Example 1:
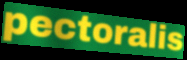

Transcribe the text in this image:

pectoralis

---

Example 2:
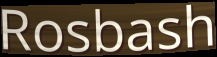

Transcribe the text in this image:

Rosbash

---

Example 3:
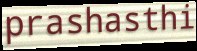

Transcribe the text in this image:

prashasthi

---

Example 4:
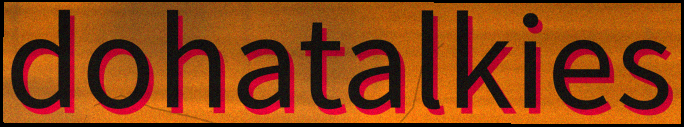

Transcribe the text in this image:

dohatalkies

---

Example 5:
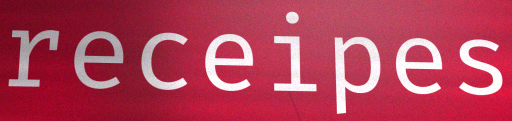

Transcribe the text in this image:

receipes